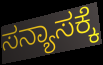
ಸನ್ಯಾಸಕ್ಕೆ